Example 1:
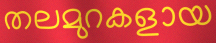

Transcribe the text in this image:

തലമുറകളായ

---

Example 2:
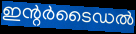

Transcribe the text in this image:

ഇന്റർടൈഡൽ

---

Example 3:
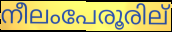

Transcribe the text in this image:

നീലംപേരൂരില്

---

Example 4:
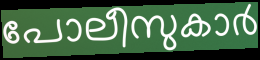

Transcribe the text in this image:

പോലീസുകാർ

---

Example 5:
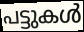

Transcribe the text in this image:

പട്ടുകൾ